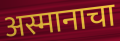
अस्मानाचा